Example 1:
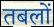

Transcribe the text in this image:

तबलों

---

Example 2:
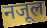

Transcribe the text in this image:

नजूल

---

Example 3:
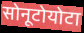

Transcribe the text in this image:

सोनूटोयोटा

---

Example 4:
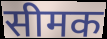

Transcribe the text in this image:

सीमक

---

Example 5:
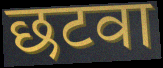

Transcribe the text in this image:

छटवा